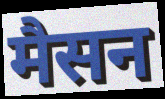
मैसन